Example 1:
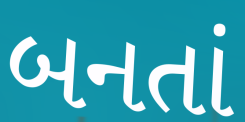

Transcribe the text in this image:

બનતાં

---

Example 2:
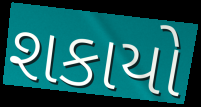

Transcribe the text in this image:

શકાયો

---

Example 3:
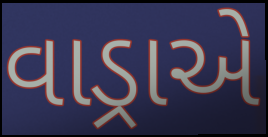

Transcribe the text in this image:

વાડ્રાએ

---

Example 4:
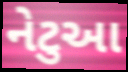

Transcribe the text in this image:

નેટુઆ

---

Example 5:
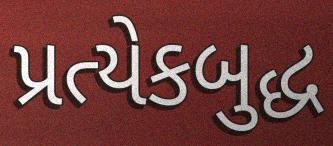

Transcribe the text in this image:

પ્રત્યેકબુદ્ધ